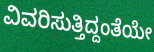
ವಿವರಿಸುತ್ತಿದ್ದಂತೆಯೇ